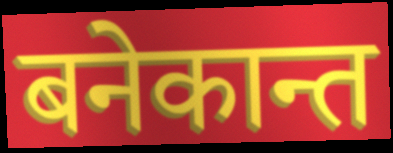
बनेकान्त